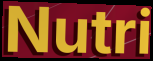
Nutri